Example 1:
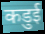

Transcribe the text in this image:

कडुई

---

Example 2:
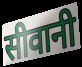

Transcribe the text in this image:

सीवानी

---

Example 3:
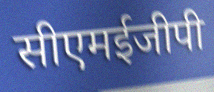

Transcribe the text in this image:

सीएमईजीपी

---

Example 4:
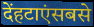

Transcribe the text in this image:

देंहटाएंसबसे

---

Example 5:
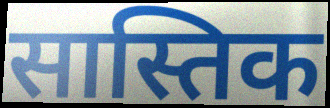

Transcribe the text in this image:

सास्तिक